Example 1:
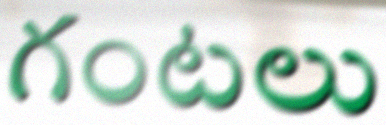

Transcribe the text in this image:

గంటలు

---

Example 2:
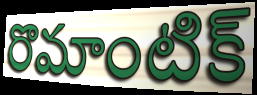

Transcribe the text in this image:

రొమాంటిక్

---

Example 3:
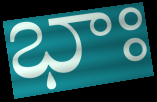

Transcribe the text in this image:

భాః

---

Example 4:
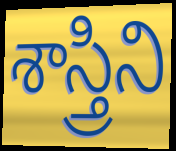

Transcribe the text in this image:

శాస్త్రిని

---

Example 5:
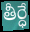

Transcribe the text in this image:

తీర్ధే